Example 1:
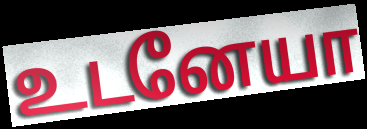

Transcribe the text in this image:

உடனேயா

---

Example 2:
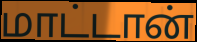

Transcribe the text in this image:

மாட்டான்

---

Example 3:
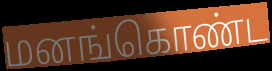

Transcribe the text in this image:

மனங்கொண்ட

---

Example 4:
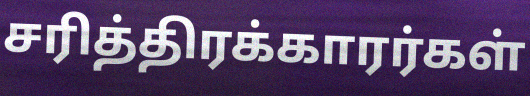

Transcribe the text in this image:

சரித்திரக்காரர்கள்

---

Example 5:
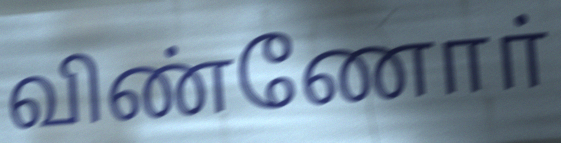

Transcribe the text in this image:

விண்ணோர்